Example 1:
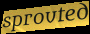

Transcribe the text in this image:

sprouted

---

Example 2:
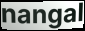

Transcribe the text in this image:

nangal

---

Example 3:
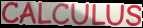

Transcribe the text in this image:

CALCULUS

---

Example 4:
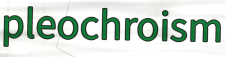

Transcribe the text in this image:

pleochroism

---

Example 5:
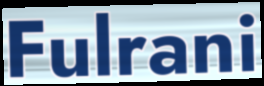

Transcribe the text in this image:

Fulrani